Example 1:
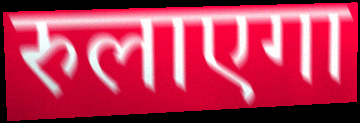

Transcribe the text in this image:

रुलाएगा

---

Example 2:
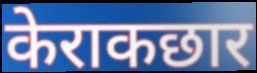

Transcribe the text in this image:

केराकछार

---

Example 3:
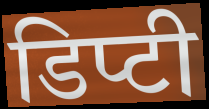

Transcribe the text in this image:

डिप्‍टी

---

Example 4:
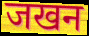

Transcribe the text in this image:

जखन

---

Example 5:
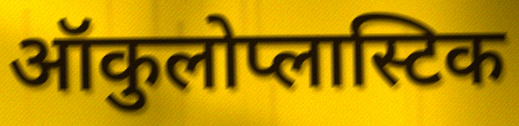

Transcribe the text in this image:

ऑकुलोप्लास्टिक